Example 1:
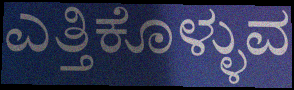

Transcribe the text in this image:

ಎತ್ತಿಕೊಳ್ಳುವ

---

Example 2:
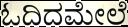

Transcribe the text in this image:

ಓದಿದಮೇಲೆ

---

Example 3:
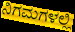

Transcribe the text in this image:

ನಿಗಮಗಳಲ್ಲಿ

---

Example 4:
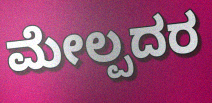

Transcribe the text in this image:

ಮೇಲ್ಪದರ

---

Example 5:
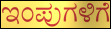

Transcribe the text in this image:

ಇಂಪುಗಳಿಗೆ